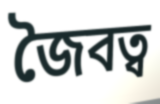
জৈবত্ব